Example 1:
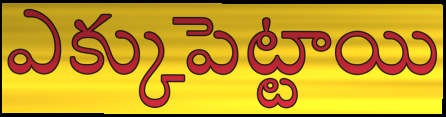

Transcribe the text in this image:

ఎక్కుపెట్టాయి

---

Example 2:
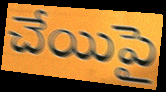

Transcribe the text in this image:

చేయిపై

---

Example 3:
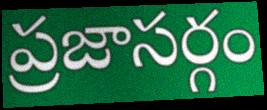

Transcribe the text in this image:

ప్రజాసర్గం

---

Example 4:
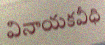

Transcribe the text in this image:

వినాయకవీధి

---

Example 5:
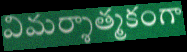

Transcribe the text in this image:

విమర్శాత్మకంగా